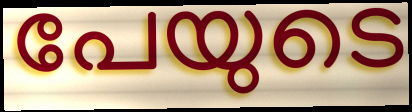
പേയുടെ